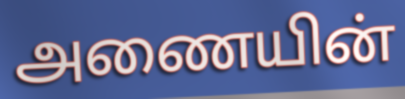
அணையின்